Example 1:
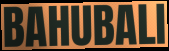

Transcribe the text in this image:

BAHUBALI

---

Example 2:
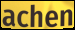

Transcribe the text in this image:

achen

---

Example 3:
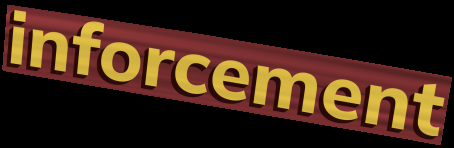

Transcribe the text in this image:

inforcement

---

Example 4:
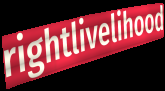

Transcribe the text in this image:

rightlivelihood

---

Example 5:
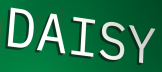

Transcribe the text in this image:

DAISY